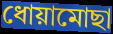
ধোয়ামোছা